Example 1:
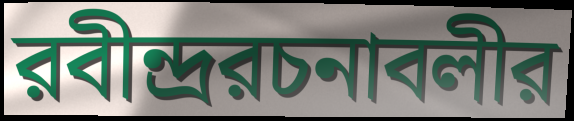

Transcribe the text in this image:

রবীন্দ্ররচনাবলীর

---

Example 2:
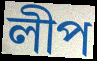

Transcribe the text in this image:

লীপ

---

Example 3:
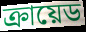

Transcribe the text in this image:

ক্রায়েড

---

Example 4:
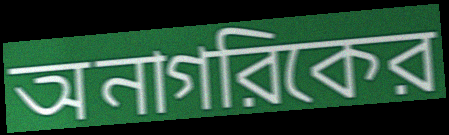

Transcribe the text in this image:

অনাগরিকের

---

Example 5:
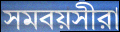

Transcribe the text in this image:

সমবয়সীরা